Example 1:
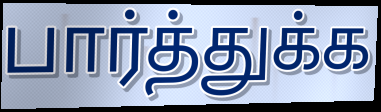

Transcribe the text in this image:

பார்த்துக்க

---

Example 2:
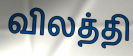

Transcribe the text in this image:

விலத்தி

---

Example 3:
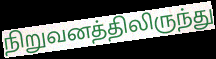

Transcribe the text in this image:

நிறுவனத்திலிருந்து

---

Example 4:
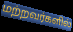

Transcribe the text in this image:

மற்றவர்களில்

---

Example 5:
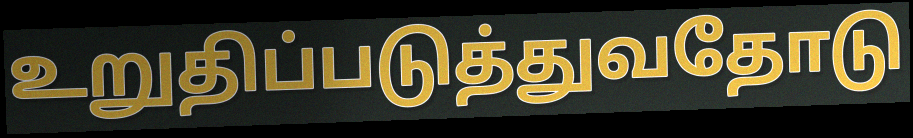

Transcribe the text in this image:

உறுதிப்படுத்துவதோடு